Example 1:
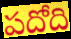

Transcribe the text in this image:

పదోది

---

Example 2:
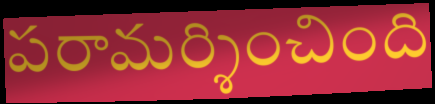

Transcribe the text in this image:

పరామర్శించింది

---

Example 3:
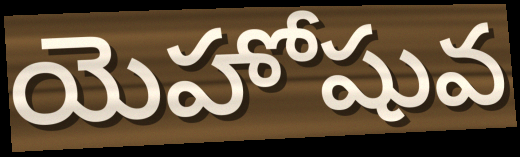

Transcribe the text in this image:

యెహోషువ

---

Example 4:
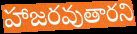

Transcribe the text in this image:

హాజరవుతారని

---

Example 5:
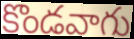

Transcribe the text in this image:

కొండవాగు